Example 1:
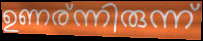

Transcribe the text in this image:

ഉണര്ന്നിരുന്ന്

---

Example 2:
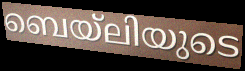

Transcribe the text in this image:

ബെയ്ലിയുടെ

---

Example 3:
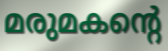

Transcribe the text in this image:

മരുമകന്റെ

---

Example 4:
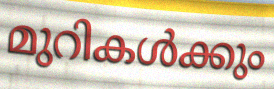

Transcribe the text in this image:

മുറികൾക്കും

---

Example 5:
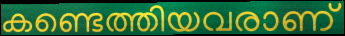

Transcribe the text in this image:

കണ്ടെത്തിയവരാണ്